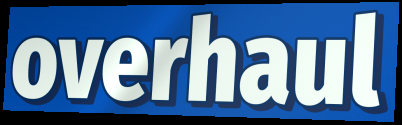
overhaul